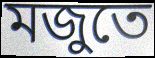
মজুতে